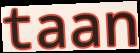
taan